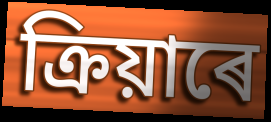
ক্ৰিয়াৰে